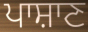
ਪਾਸ਼ਾਣ